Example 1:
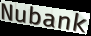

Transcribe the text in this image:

Nubank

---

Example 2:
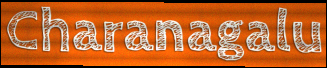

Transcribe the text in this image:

Charanagalu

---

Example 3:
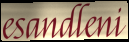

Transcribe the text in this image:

esandleni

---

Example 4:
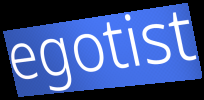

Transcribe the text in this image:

egotist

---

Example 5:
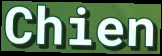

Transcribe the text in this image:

Chien